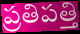
ప్రతిపత్తి